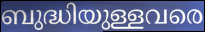
ബുദ്ധിയുള്ളവരെ